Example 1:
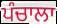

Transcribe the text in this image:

ਪੰਚਾਲਾ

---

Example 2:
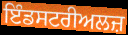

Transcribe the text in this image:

ਇੰਡਸਟਰੀਅਲਜ਼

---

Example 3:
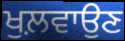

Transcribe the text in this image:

ਖੁਲ਼ਵਾਉਣ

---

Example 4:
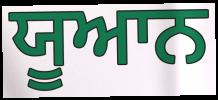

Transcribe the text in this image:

ਯੂਆਨ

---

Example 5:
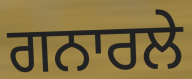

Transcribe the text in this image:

ਗਨਾਰਲੇ